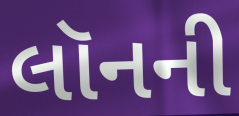
લૉનની